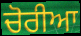
ਚੋਰੀਆ